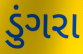
ડુંગરા